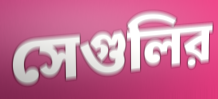
সেগুলির